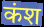
कंश